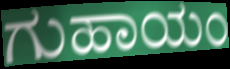
ಗುಹಾಯಂ